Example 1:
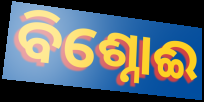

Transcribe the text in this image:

ବିଶ୍ନୋଈ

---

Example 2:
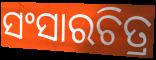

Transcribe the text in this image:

ସଂସାରଚିତ୍ର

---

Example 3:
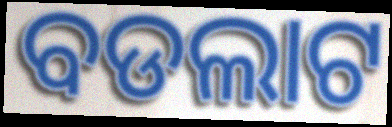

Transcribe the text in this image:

ବଡଲାଟ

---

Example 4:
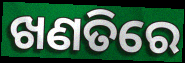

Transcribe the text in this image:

ଖଣତିରେ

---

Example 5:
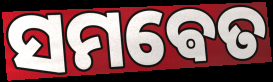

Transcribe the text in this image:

ସମଵେତ